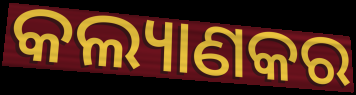
କଲ୍ୟାଣକର